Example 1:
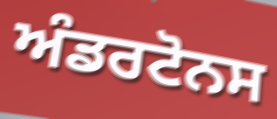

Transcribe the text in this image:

ਅੰਡਰਟੋਨਸ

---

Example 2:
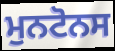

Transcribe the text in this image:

ਮੁਨਟੋਨਸ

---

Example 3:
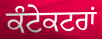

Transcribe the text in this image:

ਕੰਟੇਕਟਰਾਂ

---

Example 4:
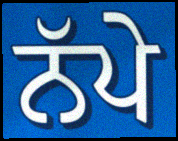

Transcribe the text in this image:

ਨੱਪੇ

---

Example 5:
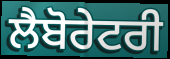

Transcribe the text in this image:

ਲੈਬੋਰੇਟਰੀ